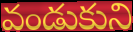
వండుకుని